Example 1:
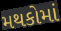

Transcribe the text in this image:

મથકોમાં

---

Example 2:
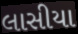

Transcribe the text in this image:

લાસીયા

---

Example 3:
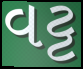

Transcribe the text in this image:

વટ્ટ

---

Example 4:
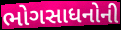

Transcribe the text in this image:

ભોગસાધનોની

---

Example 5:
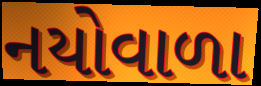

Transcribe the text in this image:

નયોવાળા